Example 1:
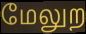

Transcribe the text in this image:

மேலுற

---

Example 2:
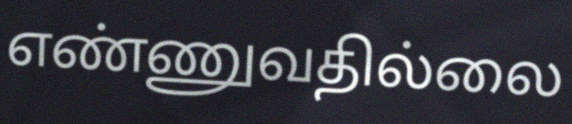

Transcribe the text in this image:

எண்ணுவதில்லை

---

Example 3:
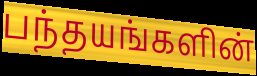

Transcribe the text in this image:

பந்தயங்களின்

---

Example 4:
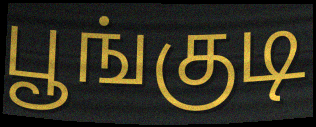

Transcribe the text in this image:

பூங்குடி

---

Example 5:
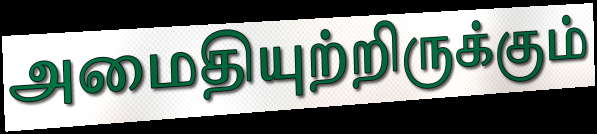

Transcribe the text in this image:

அமைதியுற்றிருக்கும்